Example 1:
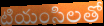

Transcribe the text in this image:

టియంసిలతో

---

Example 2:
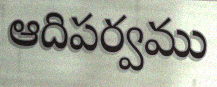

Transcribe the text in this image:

ఆదిపర్వము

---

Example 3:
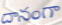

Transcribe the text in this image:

దానంగా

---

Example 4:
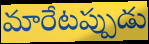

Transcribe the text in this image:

మారేటప్పుడు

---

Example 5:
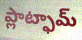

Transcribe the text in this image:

ప్లాట్ఫామ్